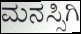
ಮನಸ್ಸಿಗಿ